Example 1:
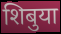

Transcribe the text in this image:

शिबुया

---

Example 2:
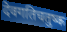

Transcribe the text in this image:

देवगतिचतुष्क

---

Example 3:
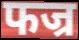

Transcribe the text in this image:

फज्र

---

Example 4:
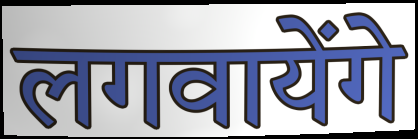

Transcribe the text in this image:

लगवायेंगे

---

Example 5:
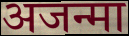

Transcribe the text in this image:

अजन्‍मा